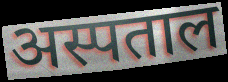
अस्पताल